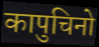
कापुचिनो